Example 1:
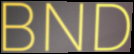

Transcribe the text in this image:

BND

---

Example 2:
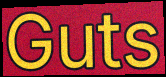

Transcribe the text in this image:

Guts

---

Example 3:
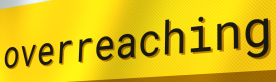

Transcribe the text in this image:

overreaching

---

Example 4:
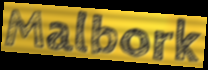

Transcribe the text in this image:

Malbork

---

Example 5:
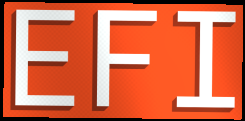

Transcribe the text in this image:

EFI